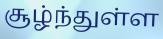
சூழ்ந்துள்ள